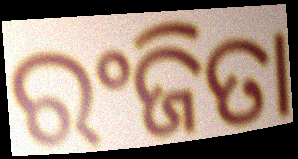
ରଂଜିତା